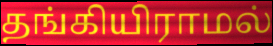
தங்கியிராமல்